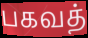
பகவத்